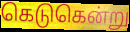
கெடுகென்று